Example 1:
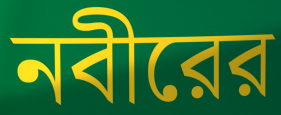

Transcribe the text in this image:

নবীরের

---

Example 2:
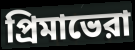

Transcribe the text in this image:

প্রিমাভেরা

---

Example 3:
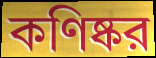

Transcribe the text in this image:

কণিষ্কর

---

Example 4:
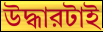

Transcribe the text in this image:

উদ্ধারটাই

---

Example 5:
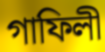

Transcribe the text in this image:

গাফিলী